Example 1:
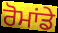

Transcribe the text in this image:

ਰੋਮਾਂਡੇ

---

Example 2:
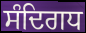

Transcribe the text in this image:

ਸੰਦਿਗਧ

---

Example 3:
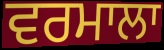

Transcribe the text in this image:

ਵਰਮਾਲਾ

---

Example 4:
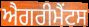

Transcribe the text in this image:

ਐਗਰੀਮੈਂਟਸ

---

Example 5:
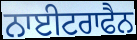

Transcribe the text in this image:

ਨਾਈਟਰਾਫੈਨ